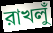
রাখলুঁ